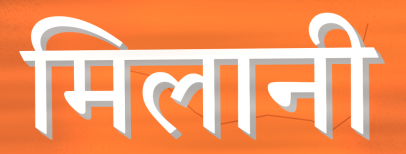
मिलानी